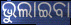
ଭୁଲାଇବା